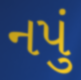
નપું